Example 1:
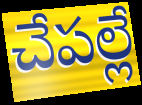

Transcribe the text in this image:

చేపల్లే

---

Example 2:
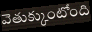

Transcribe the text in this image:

వెతుక్కుంటోంది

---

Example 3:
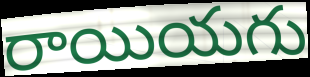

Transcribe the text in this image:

రాయియగు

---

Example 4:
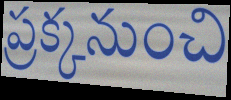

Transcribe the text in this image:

ప్రక్కనుంచి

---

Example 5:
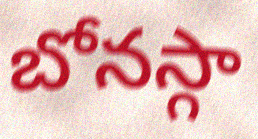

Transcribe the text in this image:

బోనస్గా